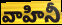
వాహినీ